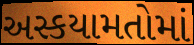
અસ્કયામતોમાં